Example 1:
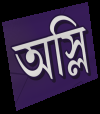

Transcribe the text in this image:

অস্লি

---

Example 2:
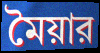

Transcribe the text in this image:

মৈয়ার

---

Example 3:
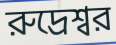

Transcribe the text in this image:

রুদ্রেশ্বর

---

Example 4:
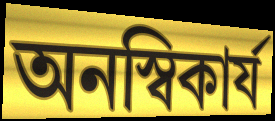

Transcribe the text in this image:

অনস্বিকার্য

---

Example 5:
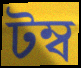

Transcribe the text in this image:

টম্ব